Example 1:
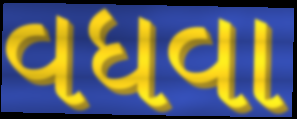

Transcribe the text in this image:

વધવા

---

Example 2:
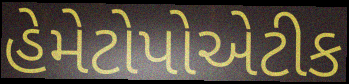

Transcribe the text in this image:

હેમેટોપોએટીક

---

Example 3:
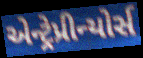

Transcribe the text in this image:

એન્ટ્રેપ્રીન્યોર્સ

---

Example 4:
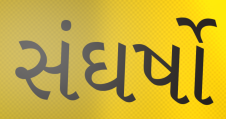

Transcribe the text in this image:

સંઘર્ષો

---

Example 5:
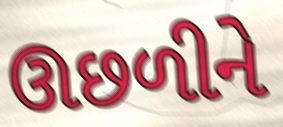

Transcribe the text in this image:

ઊછળીને